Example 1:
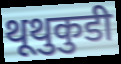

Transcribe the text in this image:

थूथुकुडी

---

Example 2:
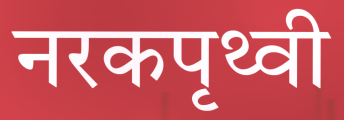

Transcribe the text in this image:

नरकपृथ्वी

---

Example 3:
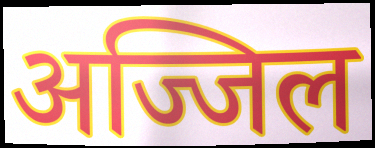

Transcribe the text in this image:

अज्जिल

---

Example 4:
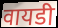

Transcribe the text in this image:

वायडी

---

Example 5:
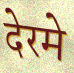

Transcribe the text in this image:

देरमे